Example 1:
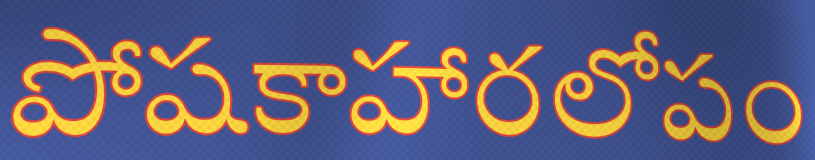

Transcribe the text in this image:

పోషకాహారలోపం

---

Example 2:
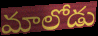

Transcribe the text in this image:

మాలోడు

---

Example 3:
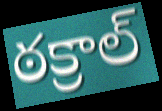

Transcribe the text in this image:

ఠక్రాల్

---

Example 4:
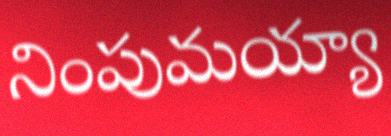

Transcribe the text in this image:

నింపుమయ్యా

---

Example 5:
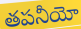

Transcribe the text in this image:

తపనీయో